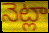
నెట్లా